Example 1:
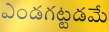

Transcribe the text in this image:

ఎండగట్టడమే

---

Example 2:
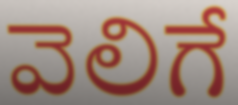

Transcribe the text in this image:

వెలిగే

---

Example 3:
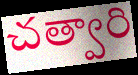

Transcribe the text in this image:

చత్వారి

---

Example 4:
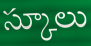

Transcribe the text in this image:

స్కూలు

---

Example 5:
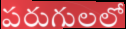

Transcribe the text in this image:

పరుగులలో